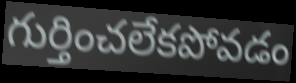
గుర్తించలేకపోవడం